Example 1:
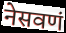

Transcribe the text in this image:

नेसवणं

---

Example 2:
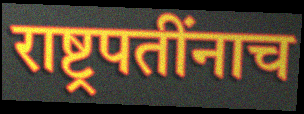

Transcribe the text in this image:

राष्ट्रपतींनाच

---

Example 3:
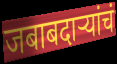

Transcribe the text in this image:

जबाबदार्‍यांचं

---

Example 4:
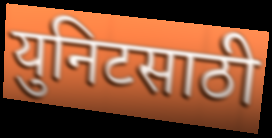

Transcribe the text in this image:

युनिटसाठी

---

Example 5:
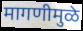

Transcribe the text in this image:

मागणीमुळे